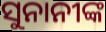
ସୁନାନୀଙ୍କ